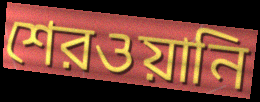
শেরওয়ানি